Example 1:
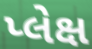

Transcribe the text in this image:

પ્લેક્ષ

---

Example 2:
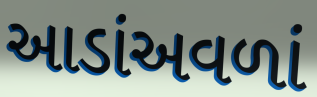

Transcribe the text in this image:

આડાંઅવળાં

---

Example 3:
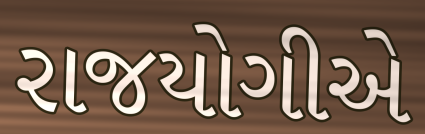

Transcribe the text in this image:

રાજયોગીએ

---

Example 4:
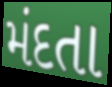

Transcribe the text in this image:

મંદતા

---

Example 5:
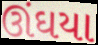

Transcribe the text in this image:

ઊંઘયા